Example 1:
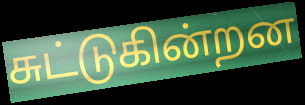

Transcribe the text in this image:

சுட்டுகின்றன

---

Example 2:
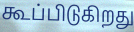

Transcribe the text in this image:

கூப்பிடுகிறது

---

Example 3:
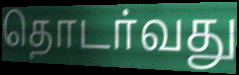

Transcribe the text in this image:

தொடர்வது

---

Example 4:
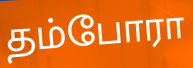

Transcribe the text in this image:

தம்போரா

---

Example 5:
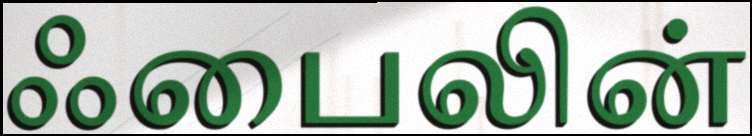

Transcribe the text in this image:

ஃபைலின்